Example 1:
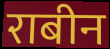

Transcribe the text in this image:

राबीन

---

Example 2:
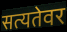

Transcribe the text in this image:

सत्यतेवर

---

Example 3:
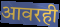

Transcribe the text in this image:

आवरही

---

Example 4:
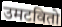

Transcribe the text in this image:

उमटवितो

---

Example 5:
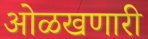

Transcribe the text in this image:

ओळखणारी